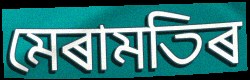
মেৰামতিৰ